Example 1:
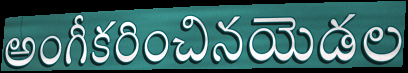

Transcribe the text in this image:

అంగీకరించినయెడల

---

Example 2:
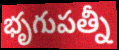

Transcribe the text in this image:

భృగుపత్నీ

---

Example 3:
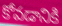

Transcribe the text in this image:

కోవడానికి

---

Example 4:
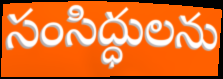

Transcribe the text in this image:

సంసిద్ధులను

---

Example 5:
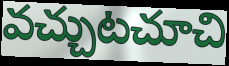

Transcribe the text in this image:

వచ్చుటచూచి